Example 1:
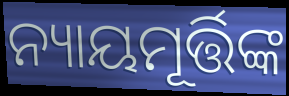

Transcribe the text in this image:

ନ୍ୟାୟମୂର୍ତ୍ତିଙ୍କ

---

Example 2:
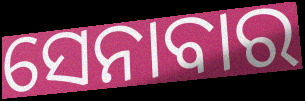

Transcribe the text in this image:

ସେନାବାର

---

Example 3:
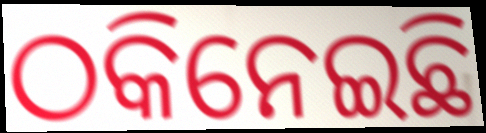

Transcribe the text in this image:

ଠକିନେଇଛି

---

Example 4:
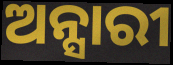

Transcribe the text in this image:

ଅନ୍ସାରୀ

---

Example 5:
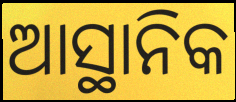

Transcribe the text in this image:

ଆସ୍ଥାନିକ